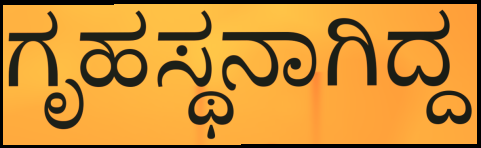
ಗೃಹಸ್ಥನಾಗಿದ್ದ